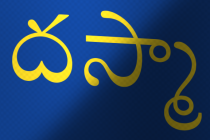
దస్మా